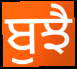
ਬੁਝੈ